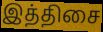
இத்திசை